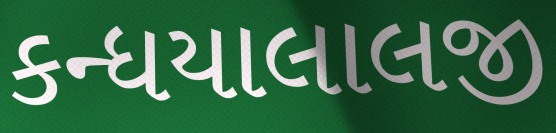
કન્ધયાલાલજી